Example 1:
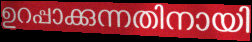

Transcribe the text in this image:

ഉറപ്പാക്കുന്നതിനായി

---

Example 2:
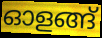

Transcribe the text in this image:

ഓളങ്ങ്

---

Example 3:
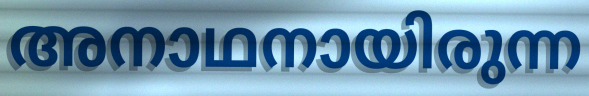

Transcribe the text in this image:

അനാഥനായിരുന്ന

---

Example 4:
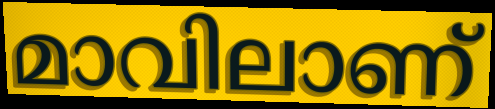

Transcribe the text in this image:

മാവിലാണ്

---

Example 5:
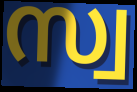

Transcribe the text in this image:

സ്വ